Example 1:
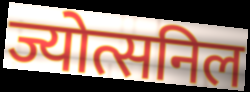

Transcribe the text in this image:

ज्योत्सनिल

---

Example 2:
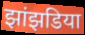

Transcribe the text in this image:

झांझडिया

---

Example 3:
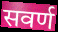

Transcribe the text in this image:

सवर्ण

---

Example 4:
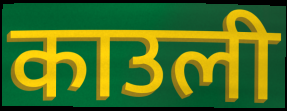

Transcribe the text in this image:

काउली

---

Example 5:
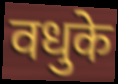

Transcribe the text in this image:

वधुके